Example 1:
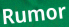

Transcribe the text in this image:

Rumor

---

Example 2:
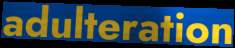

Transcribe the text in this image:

adulteration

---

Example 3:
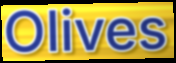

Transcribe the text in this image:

Olives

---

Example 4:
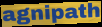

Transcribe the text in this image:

agnipath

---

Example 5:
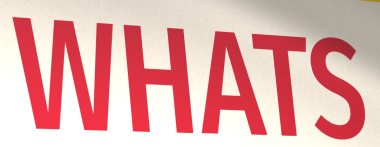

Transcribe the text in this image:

WHATS